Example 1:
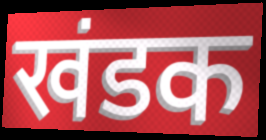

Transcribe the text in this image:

खंडक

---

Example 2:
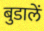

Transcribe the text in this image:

बुडालें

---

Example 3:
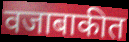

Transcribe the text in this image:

वजाबाकीत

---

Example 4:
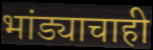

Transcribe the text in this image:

भांड्याचाही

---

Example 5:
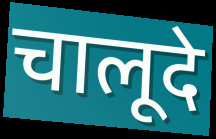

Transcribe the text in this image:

चालूदे